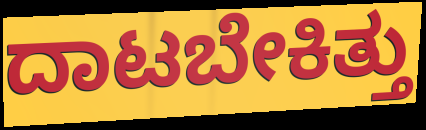
ದಾಟಬೇಕಿತ್ತು